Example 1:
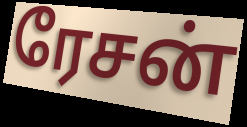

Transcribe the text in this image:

ரேசன்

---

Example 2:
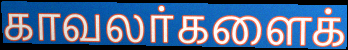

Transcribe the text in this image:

காவலர்களைக்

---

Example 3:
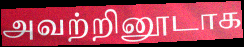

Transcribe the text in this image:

அவற்றினூடாக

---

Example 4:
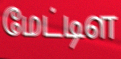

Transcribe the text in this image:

மேட்டிள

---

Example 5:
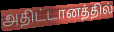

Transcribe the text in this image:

அதிட்டானத்தில்